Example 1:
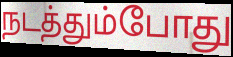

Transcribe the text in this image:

நடத்தும்போது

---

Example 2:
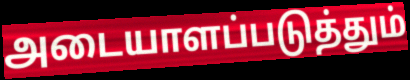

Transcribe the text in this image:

அடையாளப்படுத்தும்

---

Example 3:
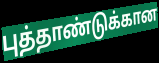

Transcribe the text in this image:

புத்தாண்டுக்கான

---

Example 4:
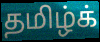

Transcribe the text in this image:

தமிழ்க்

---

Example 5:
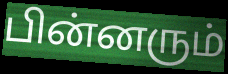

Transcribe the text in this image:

பின்னரும்